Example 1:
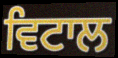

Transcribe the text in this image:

ਵਿਟਾਲ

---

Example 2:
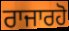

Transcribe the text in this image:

ਰਾਜਾਰਹੋ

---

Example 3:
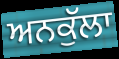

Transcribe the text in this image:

ਅਨਕੁੱਲਾ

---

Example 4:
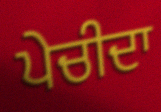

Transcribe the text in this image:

ਪੇਚੀਦਾ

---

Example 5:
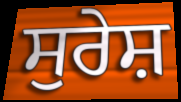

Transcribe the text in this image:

ਸੁਰੇਸ਼